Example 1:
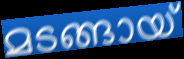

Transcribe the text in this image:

മടങ്ങായ്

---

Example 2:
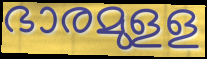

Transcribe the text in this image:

ഭാരമുളള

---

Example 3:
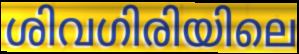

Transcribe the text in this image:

ശിവഗിരിയിലെ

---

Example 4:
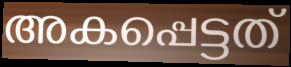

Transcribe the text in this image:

അകപ്പെട്ടത്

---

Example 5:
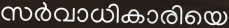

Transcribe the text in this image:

സർവാധികാരിയെ